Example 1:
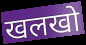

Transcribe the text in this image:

खलखो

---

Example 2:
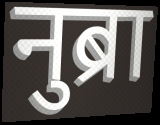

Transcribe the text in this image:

नुब्रा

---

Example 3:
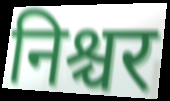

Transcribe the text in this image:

निश्चर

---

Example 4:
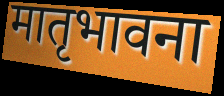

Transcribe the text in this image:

मातृभावना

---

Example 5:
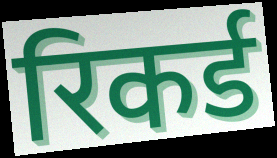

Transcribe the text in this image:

रिकर्ड